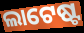
ଲାଟେଷ୍ଟ